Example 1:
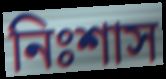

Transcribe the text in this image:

নিঃশাস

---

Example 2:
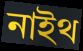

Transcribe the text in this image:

নাইথ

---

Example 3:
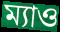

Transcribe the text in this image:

ম্যাও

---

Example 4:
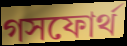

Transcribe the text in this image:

গসফোর্থ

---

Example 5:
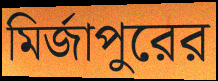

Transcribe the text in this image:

মির্জাপুরের